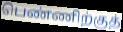
பெண்ணிற்குத்